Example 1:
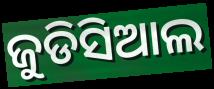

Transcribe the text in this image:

ଜୁଡିସିଆଲ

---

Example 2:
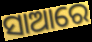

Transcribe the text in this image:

ସାଆରେ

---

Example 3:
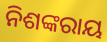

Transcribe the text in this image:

ନିଶଙ୍କରାୟ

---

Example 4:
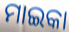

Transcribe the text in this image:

ମାଇକା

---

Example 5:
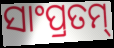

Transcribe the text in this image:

ସାଂପ୍ରତମ୍